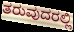
ತರುವುದರಲ್ಲಿ